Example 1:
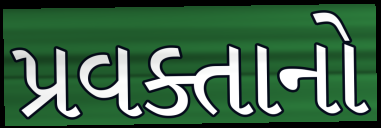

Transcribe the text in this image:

પ્રવક્તાનો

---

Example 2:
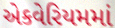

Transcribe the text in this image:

એકવેરિયમમાં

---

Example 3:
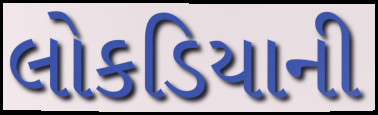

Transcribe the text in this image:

લોકડિયાની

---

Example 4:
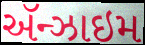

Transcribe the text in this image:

ઍન્ઝાઇમ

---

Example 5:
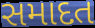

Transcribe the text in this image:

સમાદત